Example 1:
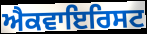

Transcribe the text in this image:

ਐਕਵਾਇਰਿਸਟ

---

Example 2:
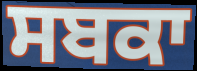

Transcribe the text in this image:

ਸਬਕਾ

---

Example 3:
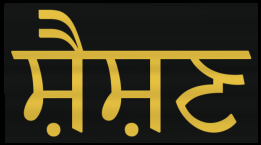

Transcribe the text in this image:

ਸ਼ੈਸ਼ਣ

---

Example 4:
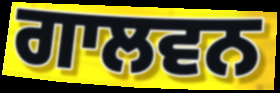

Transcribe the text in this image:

ਗਾਲਵਨ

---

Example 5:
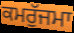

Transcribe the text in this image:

ਕਮਰੁੱਜਮਾ